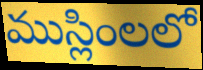
ముస్లింలలో